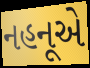
નહનૂએ